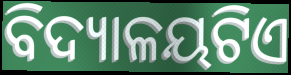
ବିଦ୍ୟାଳୟଟିଏ